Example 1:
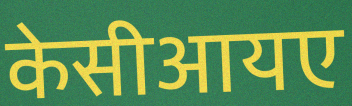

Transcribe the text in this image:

केसीआयए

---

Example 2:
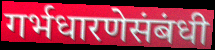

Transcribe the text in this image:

गर्भधारणेसंबंधी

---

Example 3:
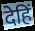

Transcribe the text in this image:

देहिं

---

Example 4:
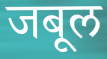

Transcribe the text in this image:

जबूल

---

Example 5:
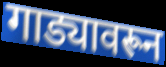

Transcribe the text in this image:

गाड्यावरून